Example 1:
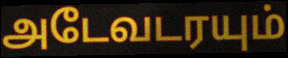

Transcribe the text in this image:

அடேவடரயும்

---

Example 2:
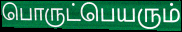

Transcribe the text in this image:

பொருட்பெயரும்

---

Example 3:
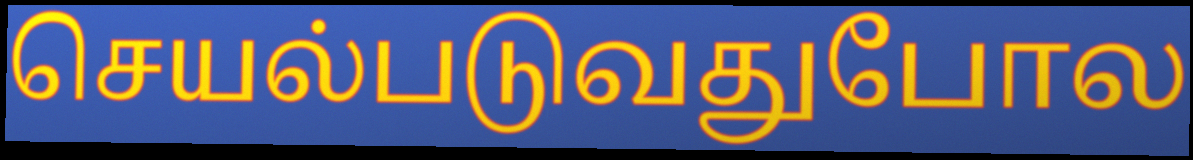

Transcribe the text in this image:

செயல்படுவதுபோல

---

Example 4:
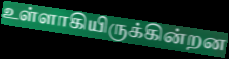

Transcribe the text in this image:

உள்ளாகியிருக்கின்றன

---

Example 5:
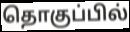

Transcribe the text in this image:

தொகுப்பில்